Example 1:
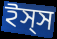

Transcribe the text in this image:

ইস্‌স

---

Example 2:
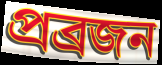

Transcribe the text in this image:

প্রব্রজন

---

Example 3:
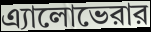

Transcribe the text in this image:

এ্যালোভেরার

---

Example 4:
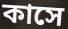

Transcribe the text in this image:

কাসে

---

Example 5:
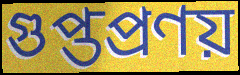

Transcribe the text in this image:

গুপ্তপ্রণয়